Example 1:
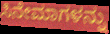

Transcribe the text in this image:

ಸಿನೇಮಾಗಳನ್ನು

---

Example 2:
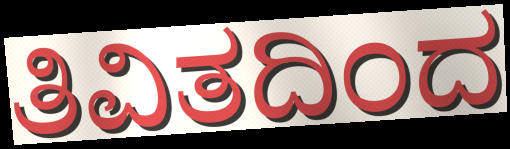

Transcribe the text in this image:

ತಿವಿತದಿಂದ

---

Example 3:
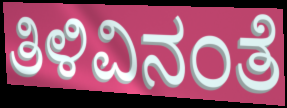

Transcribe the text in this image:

ತಿಳಿವಿನಂತೆ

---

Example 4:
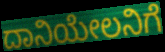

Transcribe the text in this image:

ದಾನಿಯೇಲನಿಗೆ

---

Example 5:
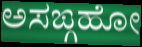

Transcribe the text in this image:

ಅಸಙ್ಗಹೋ